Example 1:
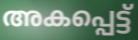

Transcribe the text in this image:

അകപ്പെട്ട്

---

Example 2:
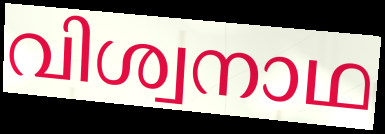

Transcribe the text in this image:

വിശ്വനാഥ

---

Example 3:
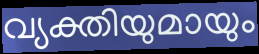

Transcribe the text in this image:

വ്യക്തിയുമായും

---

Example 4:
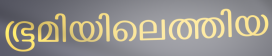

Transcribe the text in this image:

ഭൂമിയിലെത്തിയ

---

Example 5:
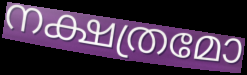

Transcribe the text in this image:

നക്ഷത്രമോ